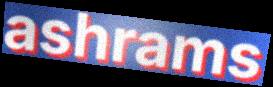
ashrams